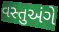
વસ્તુઅંગે